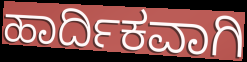
ಹಾರ್ದಿಕವಾಗಿ